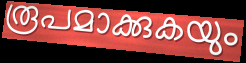
രൂപമാക്കുകയും